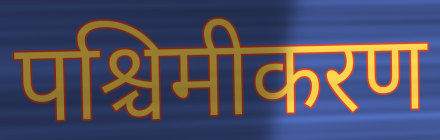
पश्चिमीकरण